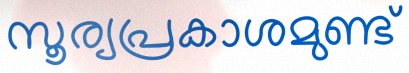
സൂര്യപ്രകാശമുണ്ട്